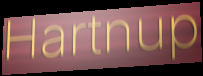
Hartnup